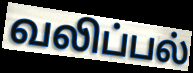
வலிப்பல்